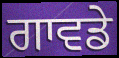
ਗਾਵਡੇ